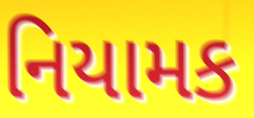
નિયામક